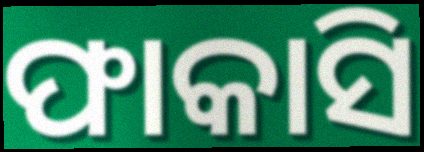
ଫାକାସି